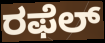
ರಫೆಲ್